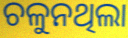
ଚଳୁନଥିଲା